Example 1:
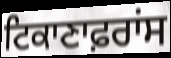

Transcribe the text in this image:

ਟਿਕਾਣਾਫ਼ਰਾਂਸ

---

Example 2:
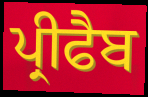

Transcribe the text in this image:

ਪ੍ਰੀਫੈਬ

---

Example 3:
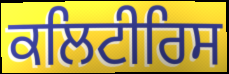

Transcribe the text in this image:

ਕਲਿਟੀਰਿਸ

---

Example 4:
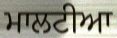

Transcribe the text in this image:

ਮਾਲਟੀਆ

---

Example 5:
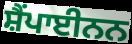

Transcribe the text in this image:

ਸ਼ੈਂਪਾਈਨਨ